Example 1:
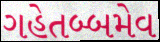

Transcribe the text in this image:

ગહેતબ્બમેવ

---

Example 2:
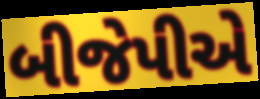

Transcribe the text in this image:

બીજેપીએ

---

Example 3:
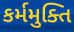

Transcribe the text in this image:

કર્મમુક્તિ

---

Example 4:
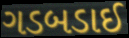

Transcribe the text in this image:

ગડબડાઈ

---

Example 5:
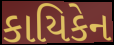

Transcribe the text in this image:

કાયિકેન